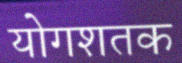
योगशतक